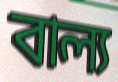
বাল্য